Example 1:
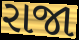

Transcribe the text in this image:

રાજા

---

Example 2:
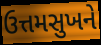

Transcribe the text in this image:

ઉત્તમસુખને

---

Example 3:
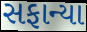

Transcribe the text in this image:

સફાન્યા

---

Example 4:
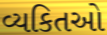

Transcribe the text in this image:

વ્યકિતઓ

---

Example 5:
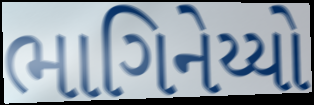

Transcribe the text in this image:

ભાગિનેય્યો